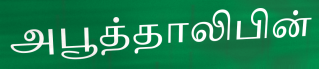
அபூத்தாலிபின்